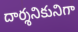
దార్శనికునిగా